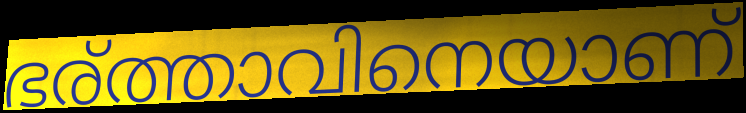
ഭര്ത്താവിനെയാണ്